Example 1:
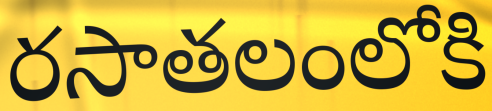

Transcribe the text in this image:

రసాతలంలోకి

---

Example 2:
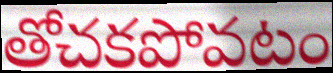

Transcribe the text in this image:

తోచకపోవటం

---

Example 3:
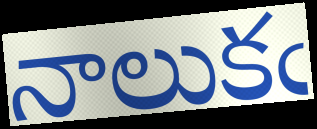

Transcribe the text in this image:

నాలుకఁ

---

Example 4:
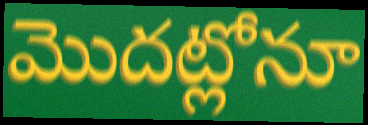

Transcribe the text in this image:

మొదట్లోనూ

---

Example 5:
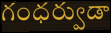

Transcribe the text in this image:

గంధర్వుడా